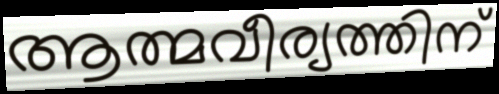
ആത്മവീര്യത്തിന്